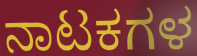
ನಾಟಕಗಳ